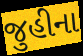
જુહીના